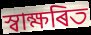
স্বাক্ষৰিত